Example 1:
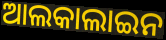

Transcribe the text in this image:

ଆଲକାଲାଇନ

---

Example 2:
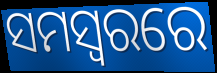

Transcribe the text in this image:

ସମସ୍ବରରେ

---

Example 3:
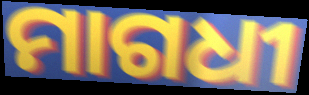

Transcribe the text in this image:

ମାଗଧୀ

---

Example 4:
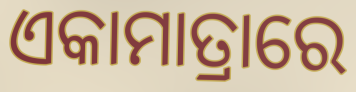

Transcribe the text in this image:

ଏକାମାତ୍ରାରେ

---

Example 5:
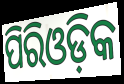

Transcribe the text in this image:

ପିରିଓଡ଼ିକ